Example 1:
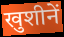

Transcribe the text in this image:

खुशीनें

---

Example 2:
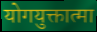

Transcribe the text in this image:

योगयुक्तात्मा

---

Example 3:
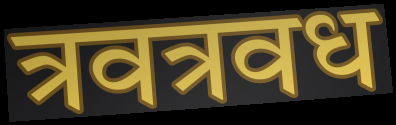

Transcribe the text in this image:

त्रवत्रवध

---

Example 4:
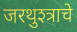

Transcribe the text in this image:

जरथुश्त्राचे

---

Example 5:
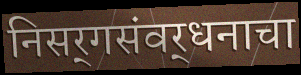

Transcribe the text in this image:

निसर्गसंवर्धनाचा